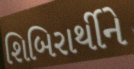
શિબિરાર્થીને